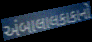
અંબાલાલકાકાનો